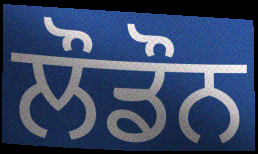
ਲੌਡੌਨ